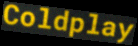
Coldplay